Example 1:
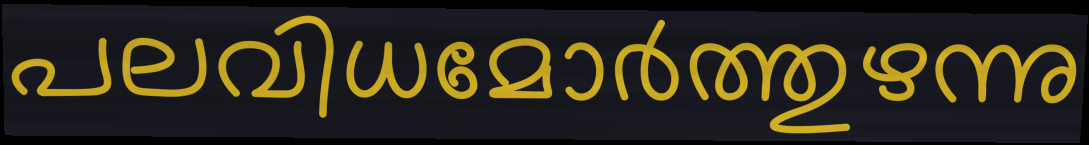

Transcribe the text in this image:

പലവിധമോർത്തുഴന്നു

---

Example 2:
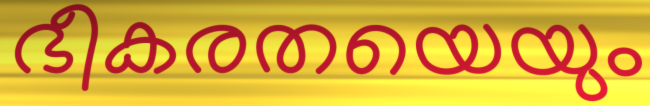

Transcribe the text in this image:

ഭീകരതയെയും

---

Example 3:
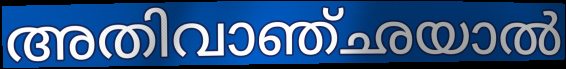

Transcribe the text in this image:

അതിവാഞ്ഛയാൽ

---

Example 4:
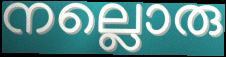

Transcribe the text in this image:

നല്ലൊരു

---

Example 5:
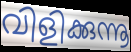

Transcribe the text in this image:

വിളിക്കുന്നൂ